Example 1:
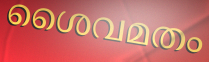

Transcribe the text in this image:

ശൈവമതം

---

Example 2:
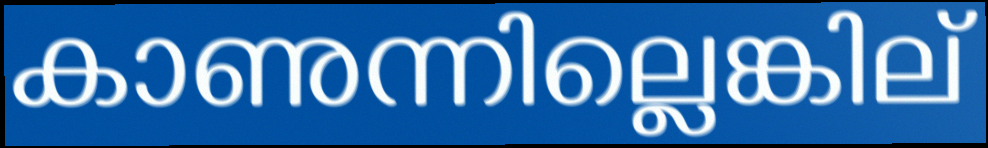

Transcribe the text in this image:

കാണുന്നില്ലെങ്കില്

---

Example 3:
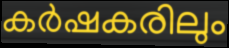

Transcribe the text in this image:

കർഷകരിലും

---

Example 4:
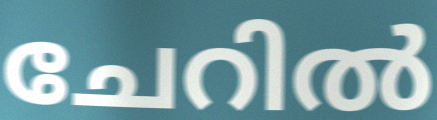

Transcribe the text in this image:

ചേറിൽ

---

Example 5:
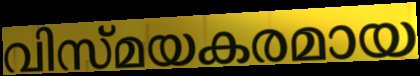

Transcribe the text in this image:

വിസ്മയകരമായ